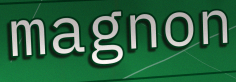
magnon